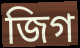
জিগ